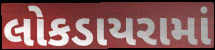
લોકડાયરામાં